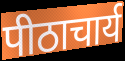
पीठाचार्य